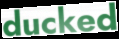
ducked